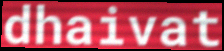
dhaivat